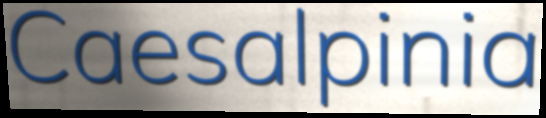
Caesalpinia